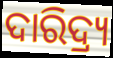
ଦାରିଦ୍ର୍ୟ